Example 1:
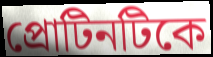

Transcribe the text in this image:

প্রোটিনটিকে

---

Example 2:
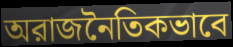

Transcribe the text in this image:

অরাজনৈতিকভাবে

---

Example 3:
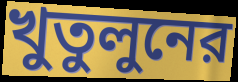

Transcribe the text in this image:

খুতুলুনের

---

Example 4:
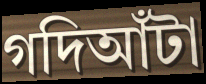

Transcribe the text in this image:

গদিআঁটা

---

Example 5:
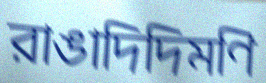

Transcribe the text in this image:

রাঙাদিদিমণি